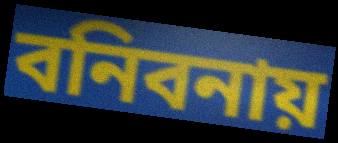
বনিবনায়